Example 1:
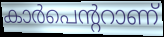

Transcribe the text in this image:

കാർപെന്ററാണ്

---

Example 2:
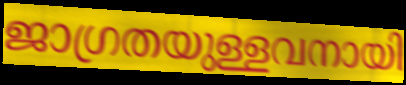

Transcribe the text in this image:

ജാഗ്രതയുള്ളവനായി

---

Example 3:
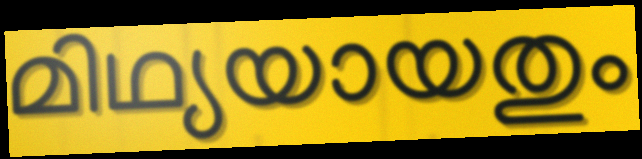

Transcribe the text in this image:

മിഥ്യയായതും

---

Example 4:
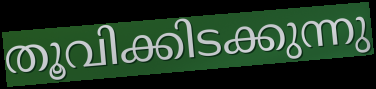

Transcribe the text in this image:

തൂവിക്കിടക്കുന്നു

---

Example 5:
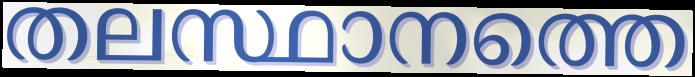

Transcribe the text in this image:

തലസ്ഥാനത്തെ